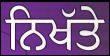
ਨਿਖੱਤੇ